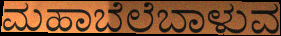
ಮಹಾಬೆಲೆಬಾಳುವ